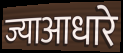
ज्याआधारे